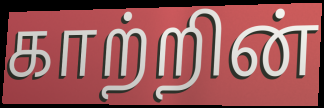
காற்றின்